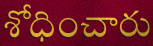
శోధించారు